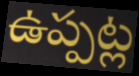
ఉప్పట్ల